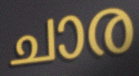
ചാര